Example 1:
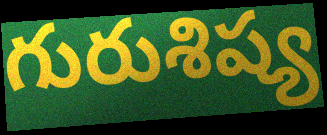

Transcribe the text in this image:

గురుశిష్య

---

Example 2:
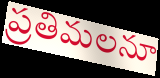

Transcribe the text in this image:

ప్రతిమలనూ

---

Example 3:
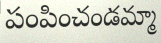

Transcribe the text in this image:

పంపించండమ్మా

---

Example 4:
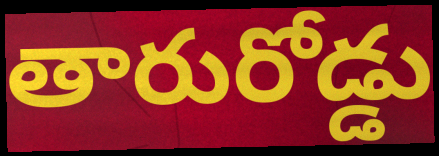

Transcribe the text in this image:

తారురోడ్డు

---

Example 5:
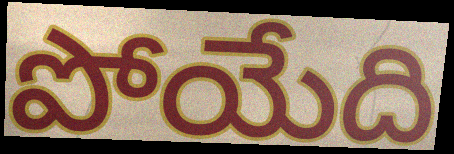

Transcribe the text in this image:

పోయేది